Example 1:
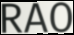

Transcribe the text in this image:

RAO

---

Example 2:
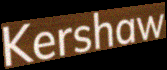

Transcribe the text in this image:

Kershaw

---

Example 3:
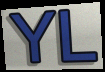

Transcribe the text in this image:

YL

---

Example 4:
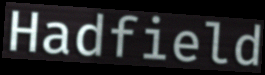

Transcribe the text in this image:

Hadfield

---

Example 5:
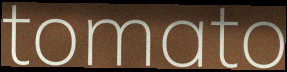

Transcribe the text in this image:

tomato